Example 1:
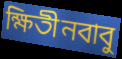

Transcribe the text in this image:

ক্ষিতীনবাবু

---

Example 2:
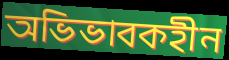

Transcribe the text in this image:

অভিভাবকহীন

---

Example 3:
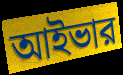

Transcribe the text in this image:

আইভার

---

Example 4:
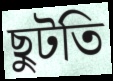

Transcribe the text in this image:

ছুটতি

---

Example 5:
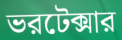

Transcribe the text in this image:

ভরটেক্সার